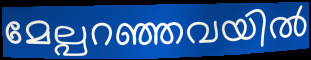
മേല്പറഞ്ഞവയിൽ